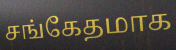
சங்கேதமாக